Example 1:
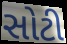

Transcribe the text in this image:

સોટી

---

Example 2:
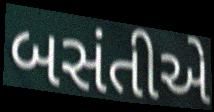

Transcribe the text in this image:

બસંતીએ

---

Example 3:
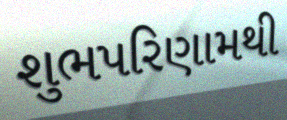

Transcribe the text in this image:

શુભપરિણામથી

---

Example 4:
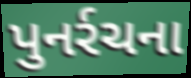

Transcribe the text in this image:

પુનર્રચના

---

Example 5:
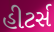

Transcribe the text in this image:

હીટર્સ